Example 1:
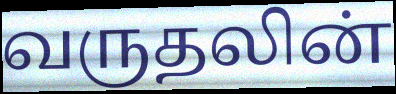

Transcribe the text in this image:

வருதலின்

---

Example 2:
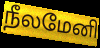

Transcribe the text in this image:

நீலமேனி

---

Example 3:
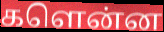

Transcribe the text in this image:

களென்ன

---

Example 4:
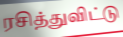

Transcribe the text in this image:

ரசித்துவிட்டு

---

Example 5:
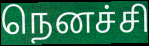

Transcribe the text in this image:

நெனச்சி